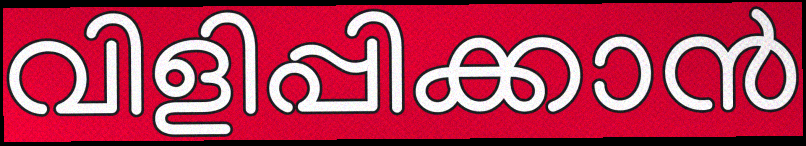
വിളിപ്പിക്കാൻ